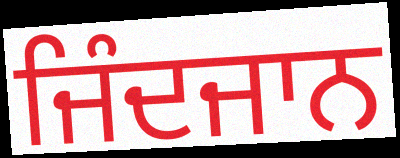
ਜਿੰਦਜਾਨ